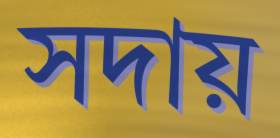
সদায়